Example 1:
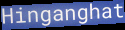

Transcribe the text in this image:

Hinganghat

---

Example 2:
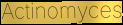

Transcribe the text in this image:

Actinomyces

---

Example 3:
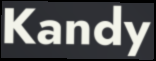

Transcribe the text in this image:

Kandy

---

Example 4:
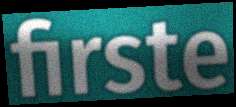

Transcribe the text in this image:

firste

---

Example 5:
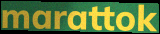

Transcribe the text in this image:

marattok